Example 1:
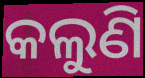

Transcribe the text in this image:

କଲୁଣି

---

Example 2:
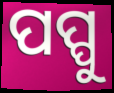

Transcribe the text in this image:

ପପ୍ପୁ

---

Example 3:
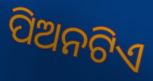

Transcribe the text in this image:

ପିଅନଟିଏ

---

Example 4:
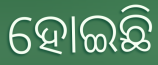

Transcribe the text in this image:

ହୋଇଛି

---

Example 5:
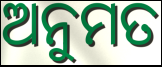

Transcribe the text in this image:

ଅନୁମତ